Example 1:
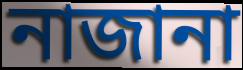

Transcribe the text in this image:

নাজানা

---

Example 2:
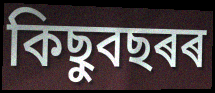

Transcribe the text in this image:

কিছুবছৰৰ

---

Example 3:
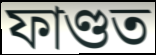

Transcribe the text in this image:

ফাণ্ডত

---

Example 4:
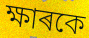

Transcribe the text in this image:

ক্ষাৰকে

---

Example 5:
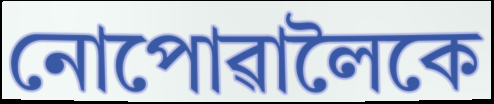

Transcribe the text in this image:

নোপোৱালৈকে